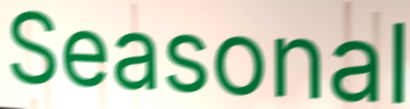
Seasonal